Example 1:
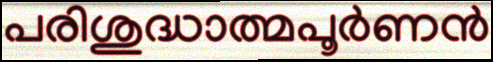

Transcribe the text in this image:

പരിശുദ്ധാത്മപൂർണൻ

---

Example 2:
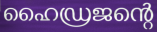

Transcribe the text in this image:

ഹൈഡ്രജന്റെ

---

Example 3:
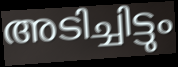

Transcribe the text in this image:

അടിച്ചിട്ടും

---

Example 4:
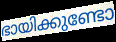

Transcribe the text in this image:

ഭായിക്കുണ്ടോ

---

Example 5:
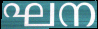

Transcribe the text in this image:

ഘന